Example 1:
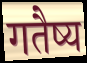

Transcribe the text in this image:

गतैष्य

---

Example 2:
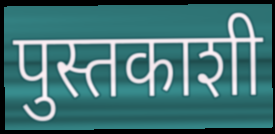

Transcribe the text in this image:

पुस्तकाशी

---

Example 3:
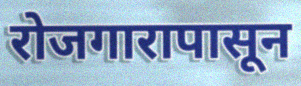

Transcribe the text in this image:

रोजगारापासून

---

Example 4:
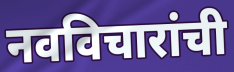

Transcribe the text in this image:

नवविचारांची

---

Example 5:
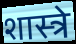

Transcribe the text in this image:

शास्त्रे